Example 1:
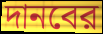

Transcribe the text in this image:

দানবের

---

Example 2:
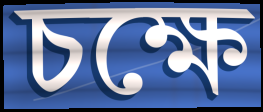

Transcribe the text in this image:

চক্ষে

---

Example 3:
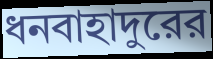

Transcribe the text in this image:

ধনবাহাদুরের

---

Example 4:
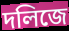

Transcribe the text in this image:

দলিজে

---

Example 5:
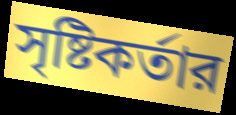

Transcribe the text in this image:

সৃষ্টিকর্তার